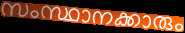
സംസ്ഥാനക്കാരും